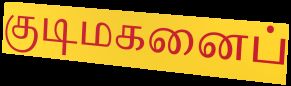
குடிமகனைப்